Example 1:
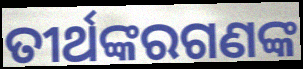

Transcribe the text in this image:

ତୀର୍ଥଙ୍କରଗଣଙ୍କ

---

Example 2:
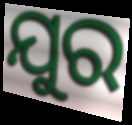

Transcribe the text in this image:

ଯୁର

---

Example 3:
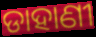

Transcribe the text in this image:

ଡାହାଣୀ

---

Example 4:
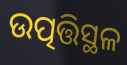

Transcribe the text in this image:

ଉତ୍ପତ୍ତିସ୍ଥଳ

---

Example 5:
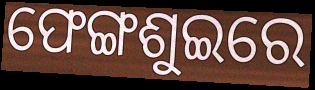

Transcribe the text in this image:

ଫେଙ୍ଗଶୁଇରେ